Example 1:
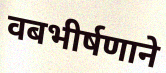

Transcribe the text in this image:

वबभीर्षणाने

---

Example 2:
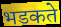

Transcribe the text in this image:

भडकते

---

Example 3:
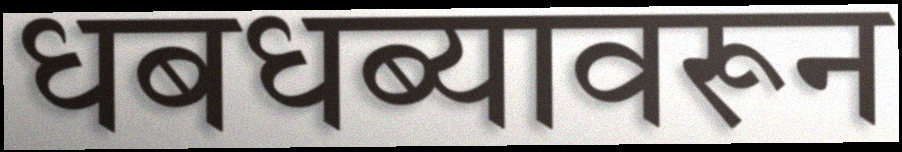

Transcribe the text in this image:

धबधब्यावरून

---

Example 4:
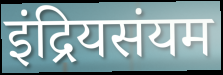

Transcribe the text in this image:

इंद्रियसंयम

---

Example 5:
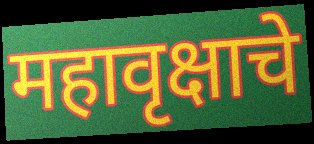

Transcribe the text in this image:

महावृक्षाचे